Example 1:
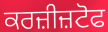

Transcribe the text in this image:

ਕਰਜ਼ੀਜ਼ਟੋਫ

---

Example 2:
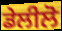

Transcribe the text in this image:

ਡੇਲੀਲੋ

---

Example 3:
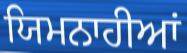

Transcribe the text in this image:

ਯਿਮਨਾਹੀਆਂ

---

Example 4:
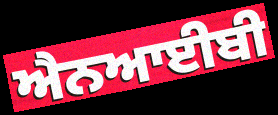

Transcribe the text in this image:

ਐਨਆਈਬੀ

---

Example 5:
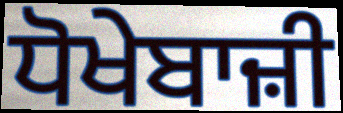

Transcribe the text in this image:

ਧੋਖੇਬਾਜ਼ੀ